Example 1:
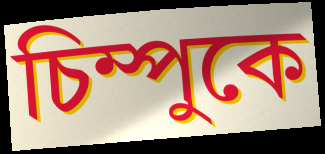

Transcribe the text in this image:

চিম্পুকে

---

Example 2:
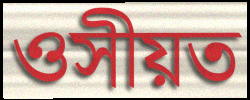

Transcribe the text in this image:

ওসীয়ত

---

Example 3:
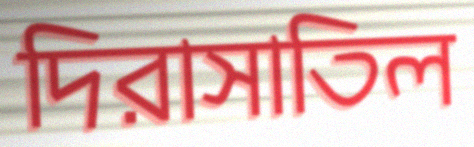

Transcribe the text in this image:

দিরাসাতিল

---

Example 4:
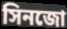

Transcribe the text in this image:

সিনজো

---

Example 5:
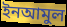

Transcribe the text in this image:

ইনআমুল